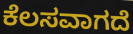
ಕೆಲಸವಾಗದೆ